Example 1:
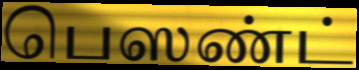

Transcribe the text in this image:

பெஸண்ட்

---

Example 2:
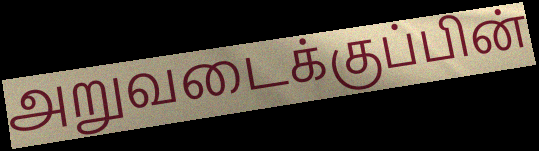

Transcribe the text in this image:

அறுவடைக்குப்பின்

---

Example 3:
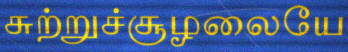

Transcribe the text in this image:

சுற்றுச்சூழலையே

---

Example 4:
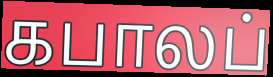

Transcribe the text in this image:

கபாலப்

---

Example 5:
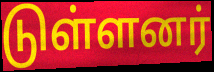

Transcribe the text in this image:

டுள்ளனர்